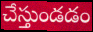
చేస్తుండడం